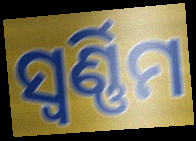
ସ୍ୱର୍ଣ୍ଣିମ